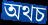
অথচ